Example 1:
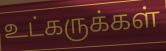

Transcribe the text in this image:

உட்கருக்கள்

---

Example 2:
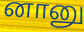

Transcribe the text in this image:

னானு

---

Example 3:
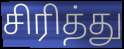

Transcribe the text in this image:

சிரித்து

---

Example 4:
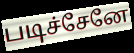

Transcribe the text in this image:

படிச்சேனே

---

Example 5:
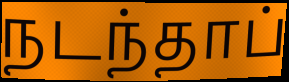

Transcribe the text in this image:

நடந்தாப்